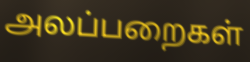
அலப்பறைகள்